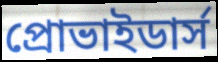
প্রোভাইডার্স